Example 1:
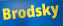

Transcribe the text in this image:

Brodsky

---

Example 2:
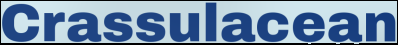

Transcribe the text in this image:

Crassulacean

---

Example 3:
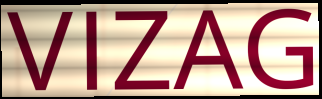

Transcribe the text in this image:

VIZAG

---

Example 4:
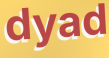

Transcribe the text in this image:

dyad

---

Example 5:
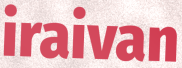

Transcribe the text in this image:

iraivan